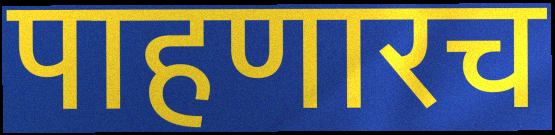
पाहणारच